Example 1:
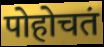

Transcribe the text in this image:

पोहोचतं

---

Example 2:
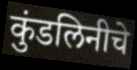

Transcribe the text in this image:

कुंडलिनीचे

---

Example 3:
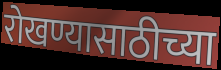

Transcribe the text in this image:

रोखण्यासाठीच्या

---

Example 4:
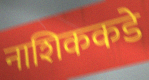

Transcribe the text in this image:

नाशिककडे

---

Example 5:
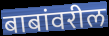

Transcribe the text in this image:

बाबांवरील